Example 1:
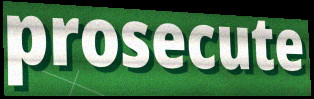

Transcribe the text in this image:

prosecute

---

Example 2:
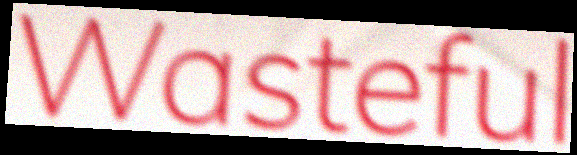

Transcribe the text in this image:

Wasteful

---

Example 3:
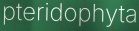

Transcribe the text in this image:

pteridophyta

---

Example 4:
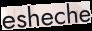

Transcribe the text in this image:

esheche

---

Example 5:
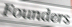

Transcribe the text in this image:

Founders